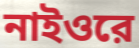
নাইওরে